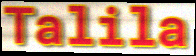
Talila